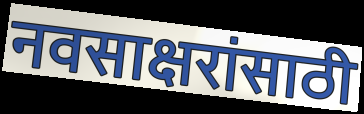
नवसाक्षरांसाठी